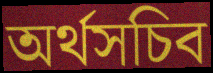
অর্থসচিব